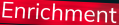
Enrichment